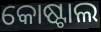
କୋଷ୍ଟାଲ